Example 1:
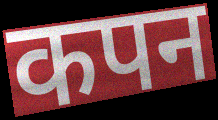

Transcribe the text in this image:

कपन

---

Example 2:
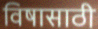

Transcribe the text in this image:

विषासाठी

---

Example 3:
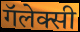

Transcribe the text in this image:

गॅलेक्सी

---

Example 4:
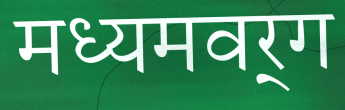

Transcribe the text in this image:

मध्यमवर्ग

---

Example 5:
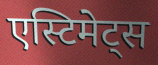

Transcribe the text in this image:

एस्टिमेट्स